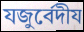
যজুর্বেদীয